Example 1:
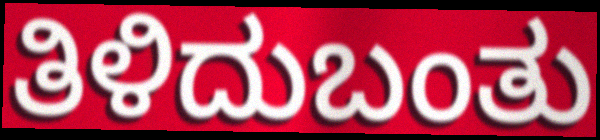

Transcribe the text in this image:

ತಿಳಿದುಬಂತು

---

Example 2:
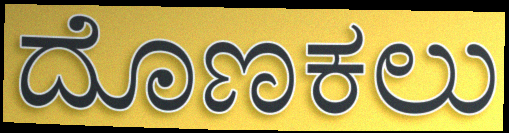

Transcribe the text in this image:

ದೊಣಕಲು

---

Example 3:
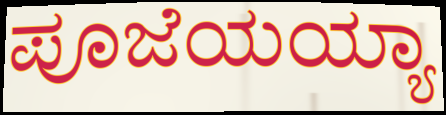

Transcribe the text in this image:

ಪೂಜೆಯಯ್ಯಾ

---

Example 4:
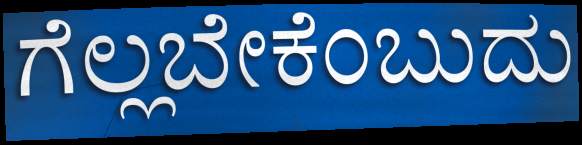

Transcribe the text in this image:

ಗೆಲ್ಲಬೇಕೆಂಬುದು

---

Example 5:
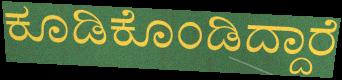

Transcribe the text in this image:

ಕೂಡಿಕೊಂಡಿದ್ದಾರೆ